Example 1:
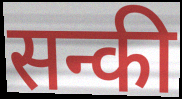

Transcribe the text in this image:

सन्की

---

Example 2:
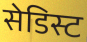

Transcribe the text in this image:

सेडिस्ट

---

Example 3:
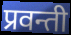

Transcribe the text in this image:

प्रवन्ती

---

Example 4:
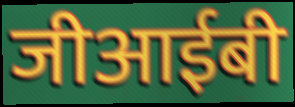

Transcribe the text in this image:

जीआईबी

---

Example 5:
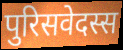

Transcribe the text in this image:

पुरिसवेदस्स